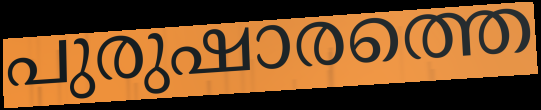
പുരുഷാരത്തെ